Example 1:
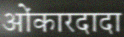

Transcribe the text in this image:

ओंकारदादा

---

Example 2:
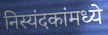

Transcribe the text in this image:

निस्यंदकांमध्ये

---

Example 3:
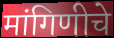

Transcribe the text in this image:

मांगिणीचे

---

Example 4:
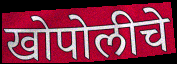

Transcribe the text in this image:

खोपोलीचे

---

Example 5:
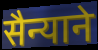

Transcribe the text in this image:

सैन्याने